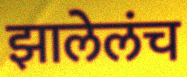
झालेलंच